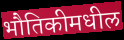
भौतिकीमधील